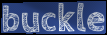
buckle